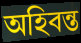
অহিবন্ত